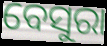
ବେସୁରା